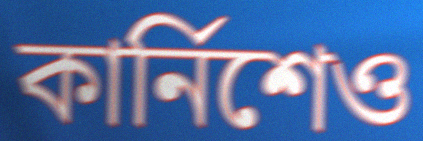
কার্নিশেও